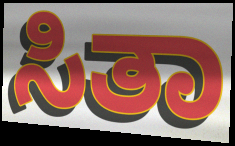
ಸಿತಾ